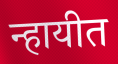
न्हायीत